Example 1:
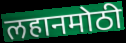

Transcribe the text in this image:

लहानमोठी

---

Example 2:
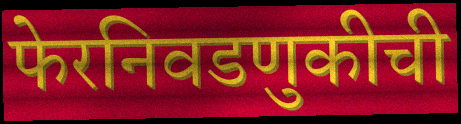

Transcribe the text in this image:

फेरनिवडणुकीची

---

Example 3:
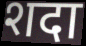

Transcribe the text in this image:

शदा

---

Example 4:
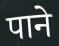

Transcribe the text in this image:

पाने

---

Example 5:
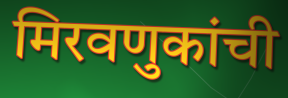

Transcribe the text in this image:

मिरवणुकांची